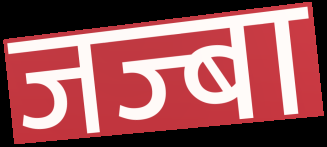
जज्बा